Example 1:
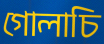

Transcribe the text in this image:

গোলাচি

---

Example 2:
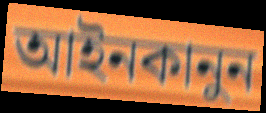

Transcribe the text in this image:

আইনকানুন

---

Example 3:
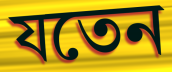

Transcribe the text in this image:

যতেন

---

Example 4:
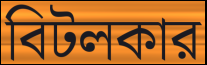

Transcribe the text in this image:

বিটলকার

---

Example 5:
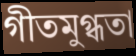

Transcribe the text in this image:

গীতমুগ্ধতা